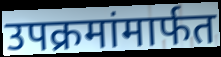
उपक्रमांमार्फत